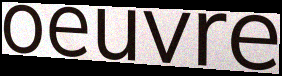
oeuvre